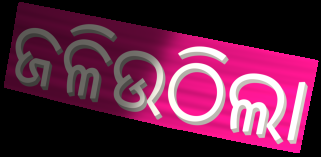
ଜଳିଉଠିଲା